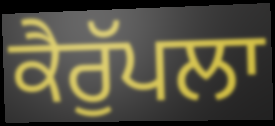
ਕੈਰੁੱਪਲਾ